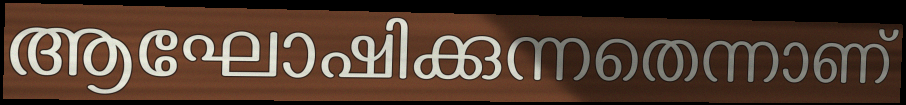
ആഘോഷിക്കുന്നതെന്നാണ്